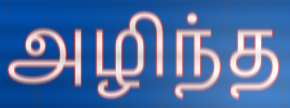
அழிந்த